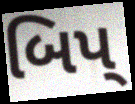
બિપ્